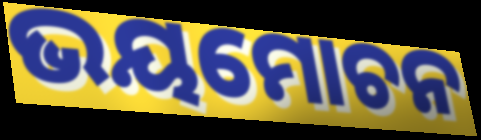
ଭୟମୋଚନ